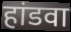
हांडवा